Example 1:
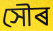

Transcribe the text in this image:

সৌৰ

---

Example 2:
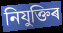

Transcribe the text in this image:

নিযুক্তিৰ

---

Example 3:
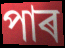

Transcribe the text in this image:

পাৰ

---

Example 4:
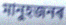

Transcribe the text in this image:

মানুহজনৰ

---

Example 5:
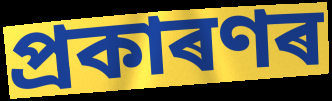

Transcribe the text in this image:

প্ৰকাৰণৰ